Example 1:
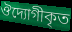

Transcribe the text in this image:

ঔদ্যোগীকৃত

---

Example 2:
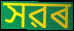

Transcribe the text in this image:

সৱৰ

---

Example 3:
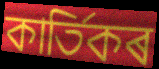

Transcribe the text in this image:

কাৰ্তিকৰ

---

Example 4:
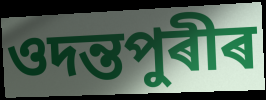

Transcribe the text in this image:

ওদন্তপুৰীৰ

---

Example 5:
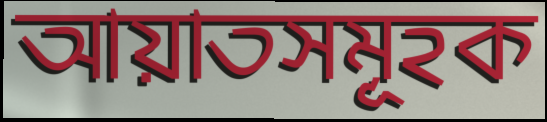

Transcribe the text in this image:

আয়াতসমূহক